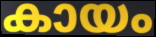
കായം